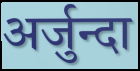
अर्जुन्दा